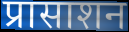
प्रासाशन